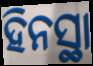
ହିନସ୍ଥା